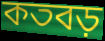
কতবড়